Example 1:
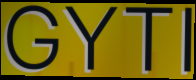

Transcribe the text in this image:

GYTI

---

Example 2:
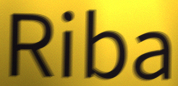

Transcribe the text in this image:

Riba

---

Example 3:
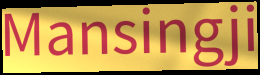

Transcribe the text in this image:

Mansingji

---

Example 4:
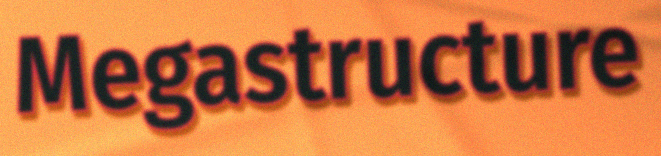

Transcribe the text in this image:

Megastructure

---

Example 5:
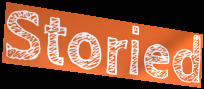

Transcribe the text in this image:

Storied